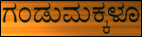
ಗಂಡುಮಕ್ಕಳೂ